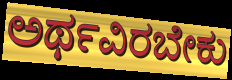
ಅರ್ಥವಿರಬೇಕು